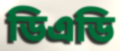
ডিএডি